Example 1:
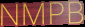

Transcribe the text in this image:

NMPB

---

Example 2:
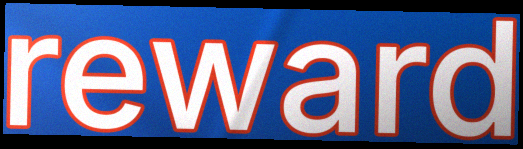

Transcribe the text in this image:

reward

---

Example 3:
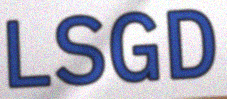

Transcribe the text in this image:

LSGD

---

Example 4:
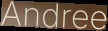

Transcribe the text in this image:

Andree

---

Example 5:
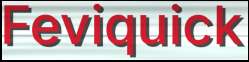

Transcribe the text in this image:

Feviquick